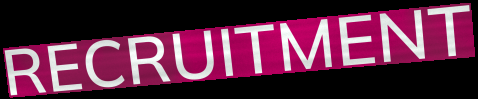
RECRUITMENT